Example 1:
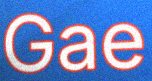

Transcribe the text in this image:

Gae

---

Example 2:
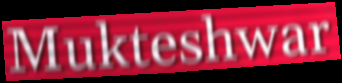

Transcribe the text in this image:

Mukteshwar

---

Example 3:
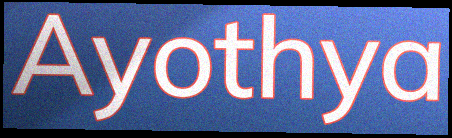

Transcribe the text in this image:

Ayothya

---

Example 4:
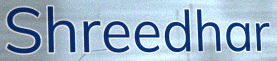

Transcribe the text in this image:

Shreedhar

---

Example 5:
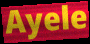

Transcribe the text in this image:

Ayele